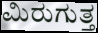
ಮಿರುಗುತ್ತ